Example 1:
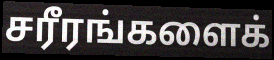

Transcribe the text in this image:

சரீரங்களைக்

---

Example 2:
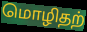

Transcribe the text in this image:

மொழிதற்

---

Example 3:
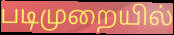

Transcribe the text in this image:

படிமுறையில்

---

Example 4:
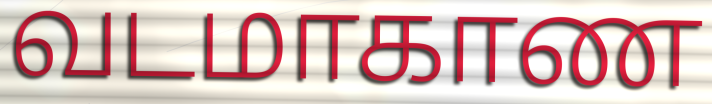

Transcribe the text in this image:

வடமாகாண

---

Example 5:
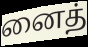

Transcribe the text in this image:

னைத்